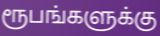
ரூபங்களுக்கு